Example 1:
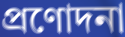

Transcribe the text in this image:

প্রণোদনা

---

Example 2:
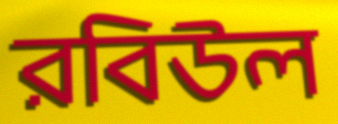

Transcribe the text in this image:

রবিউল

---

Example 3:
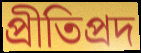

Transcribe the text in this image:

প্রীতিপ্রদ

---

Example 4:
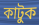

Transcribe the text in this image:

কাটুক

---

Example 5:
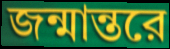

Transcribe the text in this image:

জন্মান্তরে